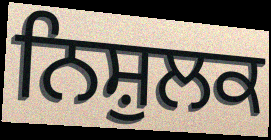
ਨਿਸ਼ੁਲਕ